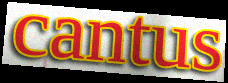
cantus